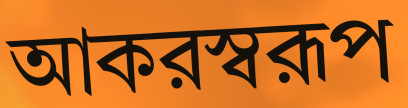
আকরস্বরূপ